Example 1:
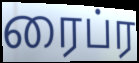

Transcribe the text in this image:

ரைப்ர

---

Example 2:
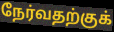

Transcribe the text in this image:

நேர்வதற்குக்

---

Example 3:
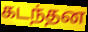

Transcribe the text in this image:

கடந்தன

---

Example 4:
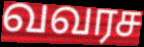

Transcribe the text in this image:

வவரச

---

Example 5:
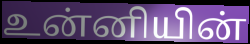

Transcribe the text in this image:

உன்னியின்